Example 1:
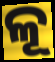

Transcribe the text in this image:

ଳୂ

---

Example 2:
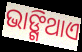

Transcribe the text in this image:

ଭାଙ୍ଗିଥାଏ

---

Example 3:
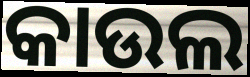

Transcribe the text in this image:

କାଉଲ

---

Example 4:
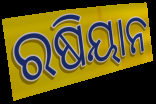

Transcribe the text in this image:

ରଷିୟାନ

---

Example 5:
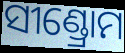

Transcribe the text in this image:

ସୀଣ୍ଡ୍ରୋମ